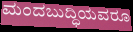
ಮಂದಬುದ್ಧಿಯವರೂ